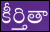
కీర్తితా